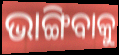
ଭାଙ୍ଗିବାକୁ